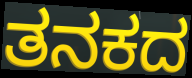
ತನಕದ